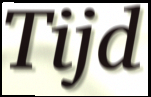
Tijd